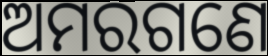
ଅମରଗଣେ